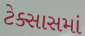
ટેક્સાસમાં